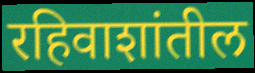
रहिवाशांतील